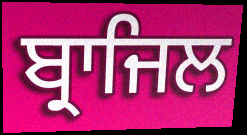
ਬ੍ਰਾਜਿਲ